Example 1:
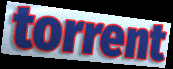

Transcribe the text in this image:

torrent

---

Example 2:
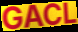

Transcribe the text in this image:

GACL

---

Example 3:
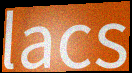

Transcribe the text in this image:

lacs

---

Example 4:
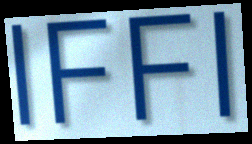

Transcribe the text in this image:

IFFI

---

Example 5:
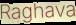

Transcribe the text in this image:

Raghava